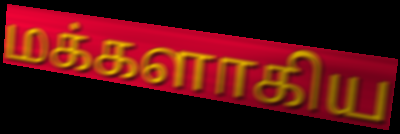
மக்களாகிய